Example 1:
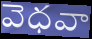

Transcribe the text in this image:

వెధవా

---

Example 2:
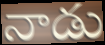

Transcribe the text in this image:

నాడు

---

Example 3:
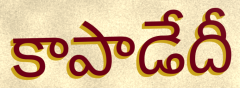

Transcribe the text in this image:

కాపాడేదీ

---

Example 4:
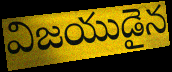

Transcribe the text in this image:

విజయుడైన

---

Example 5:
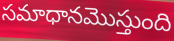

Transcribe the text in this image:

సమాధానమొస్తుంది